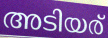
അടിയര്